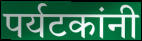
पर्यटकांनी